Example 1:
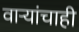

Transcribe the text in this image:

वाऱ्यांचाही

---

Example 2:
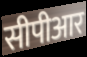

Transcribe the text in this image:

सीपीआर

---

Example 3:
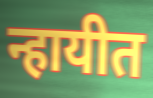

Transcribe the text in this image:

न्हायीत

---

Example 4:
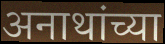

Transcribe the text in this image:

अनाथांच्या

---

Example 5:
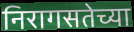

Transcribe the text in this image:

निरागसतेच्या